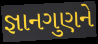
જ્ઞાનગુણને